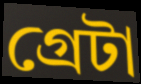
গ্রেটা